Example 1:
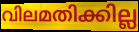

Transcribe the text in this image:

വിലമതിക്കില്ല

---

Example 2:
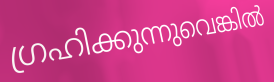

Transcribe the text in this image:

ഗ്രഹിക്കുന്നുവെങ്കിൽ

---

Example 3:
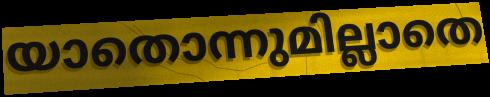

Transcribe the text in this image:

യാതൊന്നുമില്ലാതെ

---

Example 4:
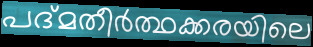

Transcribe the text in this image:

പദ്മതീർത്ഥക്കരയിലെ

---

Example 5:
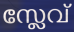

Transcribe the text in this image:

സ്ലേവ്